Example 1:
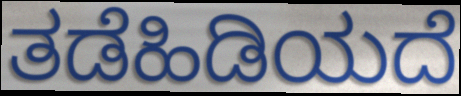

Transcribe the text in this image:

ತಡೆಹಿಡಿಯದೆ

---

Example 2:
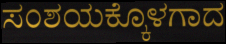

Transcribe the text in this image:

ಸಂಶಯಕ್ಕೊಳಗಾದ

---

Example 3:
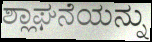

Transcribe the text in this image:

ಶ್ಲಾಘನೆಯನ್ನು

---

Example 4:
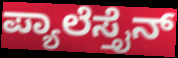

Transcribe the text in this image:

ಪ್ಯಾಲೆಸ್ತೈನ್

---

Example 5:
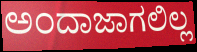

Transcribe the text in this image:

ಅಂದಾಜಾಗಲಿಲ್ಲ